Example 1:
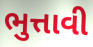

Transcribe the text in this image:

ભુત્તાવી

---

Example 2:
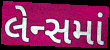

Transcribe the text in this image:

લેન્સમાં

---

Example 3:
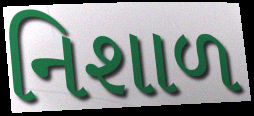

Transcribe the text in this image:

નિશાળ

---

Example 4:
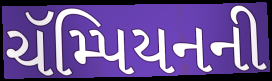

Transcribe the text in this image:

ચૅમ્પિયનની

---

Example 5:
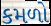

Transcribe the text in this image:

કમળો